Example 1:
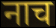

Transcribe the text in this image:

नाच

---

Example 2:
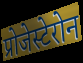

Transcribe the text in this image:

प्रोजेस्टेरोन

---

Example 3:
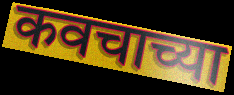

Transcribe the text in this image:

कवचाच्या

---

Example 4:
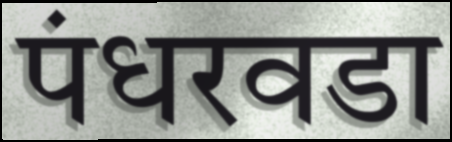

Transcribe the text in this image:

पंधरवडा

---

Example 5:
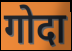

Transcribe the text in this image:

गोदा